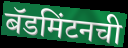
बॅडमिंटनची